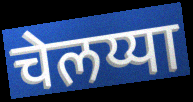
चेलय्या